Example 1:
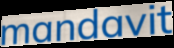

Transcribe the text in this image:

mandavit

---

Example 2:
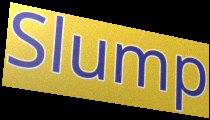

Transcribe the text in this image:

Slump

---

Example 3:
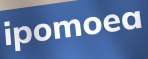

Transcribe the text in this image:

ipomoea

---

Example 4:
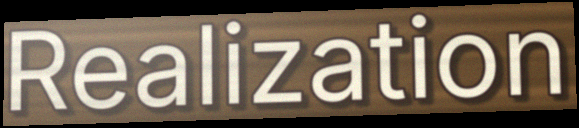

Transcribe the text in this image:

Realization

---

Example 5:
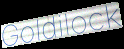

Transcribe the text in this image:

Goldilock